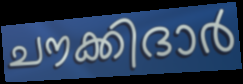
ചൗക്കിദാർ